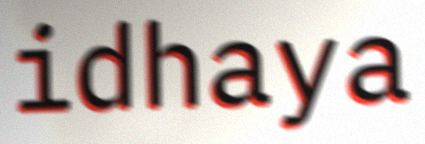
idhaya